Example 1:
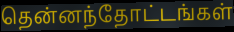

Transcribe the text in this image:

தென்னந்தோட்டங்கள்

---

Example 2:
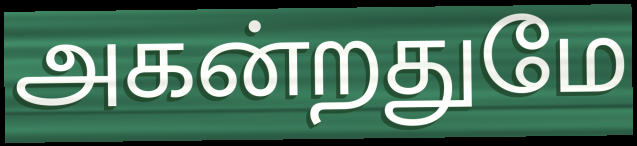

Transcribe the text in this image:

அகன்றதுமே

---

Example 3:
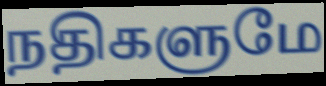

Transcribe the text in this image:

நதிகளுமே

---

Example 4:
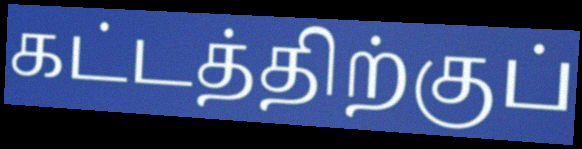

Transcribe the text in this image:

கட்டத்திற்குப்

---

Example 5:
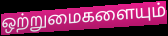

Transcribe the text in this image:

ஒற்றுமைகளையும்